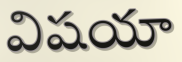
విషయా